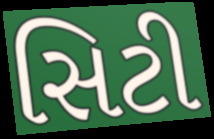
સિટી